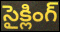
సైక్లింగ్